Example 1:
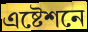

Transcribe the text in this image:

এষ্টেশনে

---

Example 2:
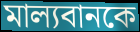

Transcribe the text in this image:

মাল্যবানকে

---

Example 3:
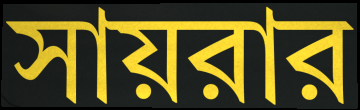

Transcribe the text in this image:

সায়রার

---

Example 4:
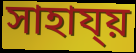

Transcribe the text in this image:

সাহায্য়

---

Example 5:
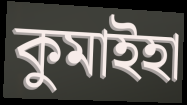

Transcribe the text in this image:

কুমাইহা